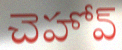
చెహోవ్